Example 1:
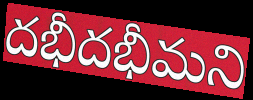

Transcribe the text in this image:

దభీదభీమని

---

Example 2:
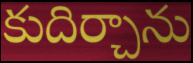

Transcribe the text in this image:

కుదిర్చాను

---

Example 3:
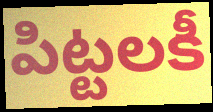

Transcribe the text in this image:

పిట్టలకీ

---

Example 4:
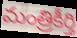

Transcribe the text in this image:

మంత్రికీర్తి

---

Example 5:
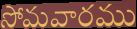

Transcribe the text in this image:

సోమవారము